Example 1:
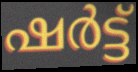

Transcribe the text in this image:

ഷർട്ട്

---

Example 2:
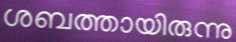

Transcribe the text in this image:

ശബത്തായിരുന്നു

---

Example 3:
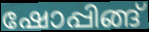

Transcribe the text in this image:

ഷോപ്പിങ്ങ്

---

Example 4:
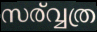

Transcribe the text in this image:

സര്വ്വത്ര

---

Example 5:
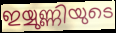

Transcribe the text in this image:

ഇയ്യുണ്ണിയുടെ